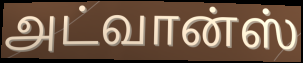
அட்வான்ஸ்